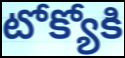
టోక్యోకి